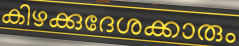
കിഴക്കുദേശക്കാരും